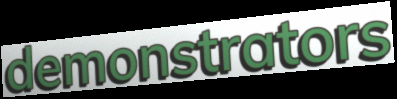
demonstrators